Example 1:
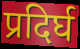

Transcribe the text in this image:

प्रदिर्घ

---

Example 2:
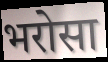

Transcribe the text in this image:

भरोसा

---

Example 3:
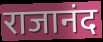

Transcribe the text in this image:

राजानंद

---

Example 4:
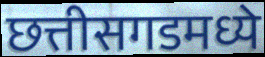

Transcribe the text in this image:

छत्तीसगडमध्ये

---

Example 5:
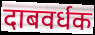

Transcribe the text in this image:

दाबवर्धक